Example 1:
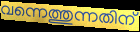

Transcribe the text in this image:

വന്നെത്തുന്നതിന്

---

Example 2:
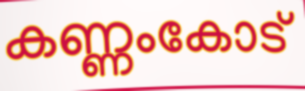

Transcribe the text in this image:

കണ്ണംകോട്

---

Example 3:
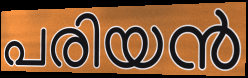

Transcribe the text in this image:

പരിയൻ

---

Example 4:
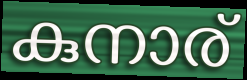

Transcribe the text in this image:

കുനാര്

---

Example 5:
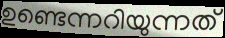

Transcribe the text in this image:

ഉണ്ടെന്നറിയുന്നത്